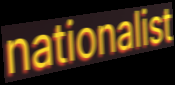
nationalist